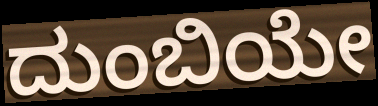
ದುಂಬಿಯೇ